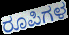
ರೂಪಿಗಳ